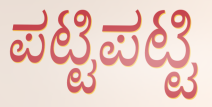
ಪಟ್ಟಿಪಟ್ಟಿ